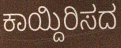
ಕಾಯ್ದಿರಿಸದ